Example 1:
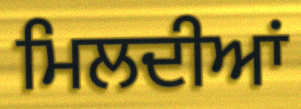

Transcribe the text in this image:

ਮਿਲਦੀਆਂ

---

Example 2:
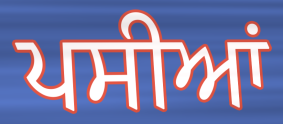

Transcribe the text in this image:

ਪਸੀਆਂ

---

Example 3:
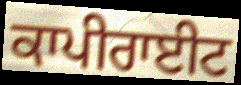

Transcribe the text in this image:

ਕਾਪੀਰਾਈਟ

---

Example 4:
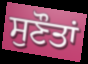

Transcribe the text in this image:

ਸੁਣੌਤਾਂ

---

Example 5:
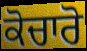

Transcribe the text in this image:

ਕੋਚਾਰੋ